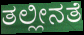
ತಲ್ಲೀನತೆ